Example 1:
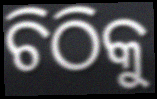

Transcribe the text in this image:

ଚିଠିକୁ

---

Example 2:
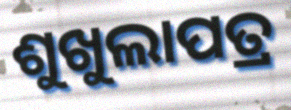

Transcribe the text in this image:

ଶୁଖୁଲାପତ୍ର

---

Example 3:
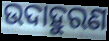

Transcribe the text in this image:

ଉଦାହୁରଣ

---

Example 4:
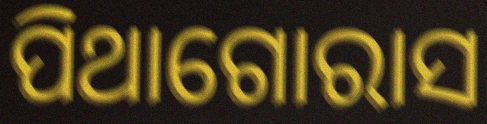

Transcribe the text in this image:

ପିଥାଗୋରାସ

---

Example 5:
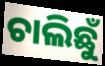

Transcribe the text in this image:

ଚାଲିଛୁଁ